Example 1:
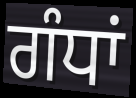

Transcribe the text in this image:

ਗੰਧਾਂ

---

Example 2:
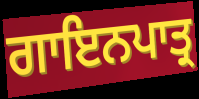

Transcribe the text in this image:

ਗਾਇਨਪਾਤ੍ਰ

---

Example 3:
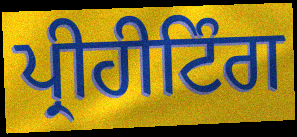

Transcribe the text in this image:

ਪ੍ਰੀਹੀਟਿੰਗ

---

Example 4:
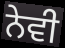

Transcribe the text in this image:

ਨੇਵੀ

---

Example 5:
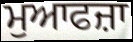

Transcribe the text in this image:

ਮੁਆਫਜ਼ਾ